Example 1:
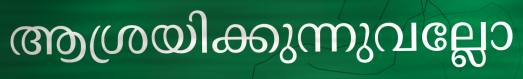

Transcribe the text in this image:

ആശ്രയിക്കുന്നുവല്ലോ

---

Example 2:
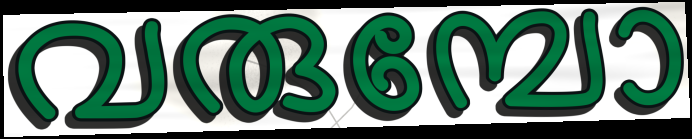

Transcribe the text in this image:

വരുമ്പോ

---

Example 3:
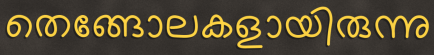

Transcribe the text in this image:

തെങ്ങോലകളായിരുന്നു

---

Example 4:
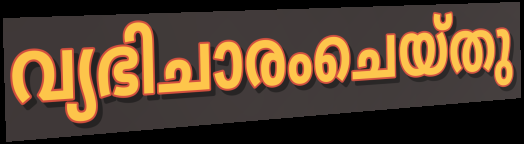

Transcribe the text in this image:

വ്യഭിചാരംചെയ്തു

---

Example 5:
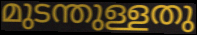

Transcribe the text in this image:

മുടന്തുള്ളതു